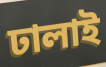
ঢালাই